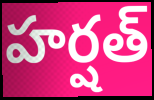
హర్షత్